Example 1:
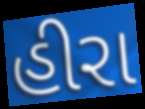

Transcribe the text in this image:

હીરા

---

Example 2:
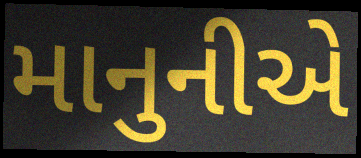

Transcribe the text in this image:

માનુનીએ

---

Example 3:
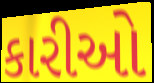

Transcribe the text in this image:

કારીઓ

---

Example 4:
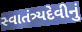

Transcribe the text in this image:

સ્વાતંત્ર્યદેવીનું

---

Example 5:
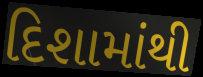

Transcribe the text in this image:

દિશામાંથી